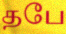
தபே